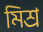
মিশ্ৰ